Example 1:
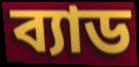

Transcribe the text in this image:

ব্যাড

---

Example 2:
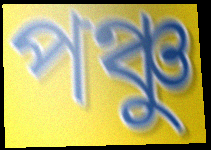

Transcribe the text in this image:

পঞ্চু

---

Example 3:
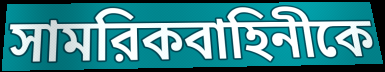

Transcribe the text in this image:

সামরিকবাহিনীকে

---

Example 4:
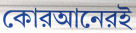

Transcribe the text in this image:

কোরআনেরই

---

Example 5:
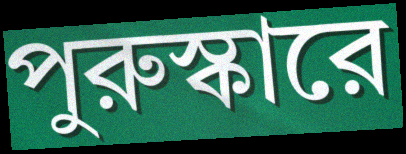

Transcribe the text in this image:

পুরুস্কারে